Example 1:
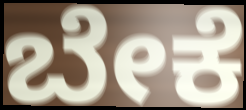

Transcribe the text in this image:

ಬೇಕೆ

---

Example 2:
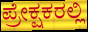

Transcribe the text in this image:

ಪ್ರೇಕ್ಷಕರಲ್ಲಿ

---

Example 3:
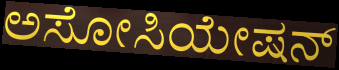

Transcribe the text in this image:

ಅಸೋಸಿಯೇಷನ್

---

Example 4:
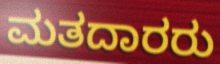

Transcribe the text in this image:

ಮತದಾರರು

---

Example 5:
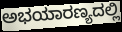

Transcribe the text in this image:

ಅಭಯಾರಣ್ಯದಲ್ಲಿ